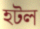
হটল